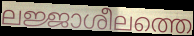
ലജ്ജാശീലത്തെ